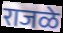
राजळे